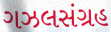
ગઝલસંગ્રહ